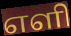
எளி